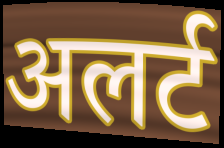
अलर्ट